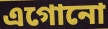
এগোনো